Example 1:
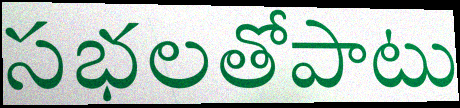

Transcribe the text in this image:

సభలతోపాటు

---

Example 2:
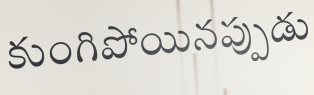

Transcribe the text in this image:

కుంగిపోయినప్పుడు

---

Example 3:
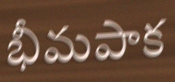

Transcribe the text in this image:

భీమపాక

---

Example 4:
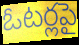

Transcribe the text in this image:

ఓటర్లపై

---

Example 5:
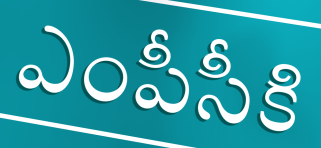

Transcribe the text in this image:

ఎంపీసీకి